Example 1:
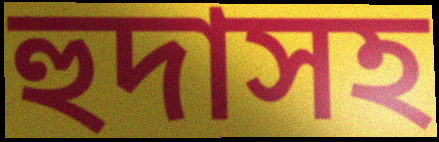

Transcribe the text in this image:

হুদাসহ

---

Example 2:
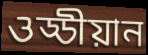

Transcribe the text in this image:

ওড্ডীয়ান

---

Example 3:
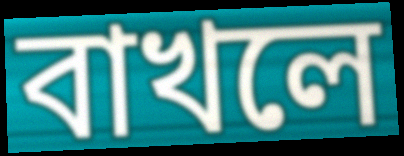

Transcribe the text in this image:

বাখলে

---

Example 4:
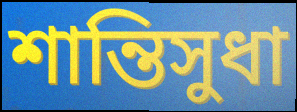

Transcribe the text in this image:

শান্তিসুধা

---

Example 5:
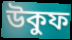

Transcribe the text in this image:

উকুফ